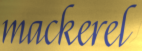
mackerel